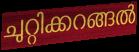
ചുറ്റിക്കറങ്ങൽ